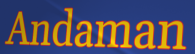
Andaman